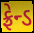
ફ્રેન્ડ